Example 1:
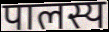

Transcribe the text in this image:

पालस्य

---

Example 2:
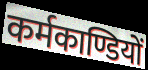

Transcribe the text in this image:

कर्मकाण्डियों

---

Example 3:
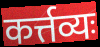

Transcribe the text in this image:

कर्त्तव्यः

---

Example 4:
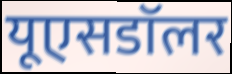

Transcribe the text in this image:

यूएसडॉलर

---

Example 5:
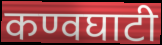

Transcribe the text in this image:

कण्वघाटी